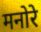
मनोरे